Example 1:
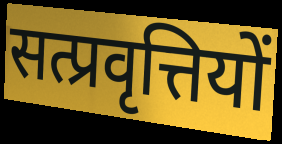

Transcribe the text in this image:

सत्प्रवृत्तियों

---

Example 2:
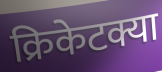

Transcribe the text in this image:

क्रिकेटक्या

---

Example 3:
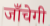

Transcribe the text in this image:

जाँचेगी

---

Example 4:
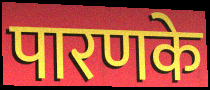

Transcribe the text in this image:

पारणके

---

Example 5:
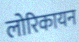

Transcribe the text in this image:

लोरिकायन